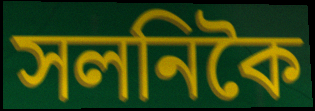
সলনিকৈ